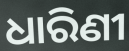
ଧାରିଣୀ